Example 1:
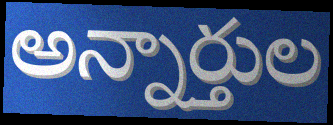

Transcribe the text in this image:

అన్నార్తుల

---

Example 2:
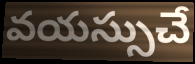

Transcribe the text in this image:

వయస్సుచే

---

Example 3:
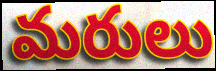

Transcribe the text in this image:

మరులు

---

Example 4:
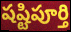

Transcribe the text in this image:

షష్టిపూర్తి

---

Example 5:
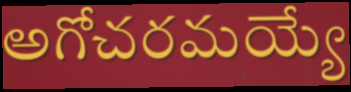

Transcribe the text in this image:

అగోచరమయ్యే